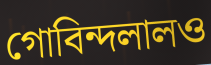
গোবিন্দলালও